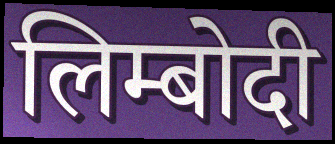
लिम्बोदी